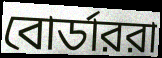
বোর্ডাররা